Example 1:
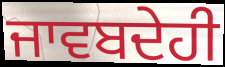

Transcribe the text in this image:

ਜਾਵਬਦੇਹੀ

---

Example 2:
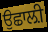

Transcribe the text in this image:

ਉਛਾਲ਼ੀ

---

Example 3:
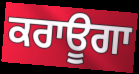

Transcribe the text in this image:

ਕਰਾਊਗਾ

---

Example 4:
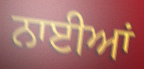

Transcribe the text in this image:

ਨਾਈਆਂ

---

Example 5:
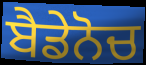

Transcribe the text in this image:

ਬੈਡੇਨੋਚ